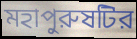
মহাপুরুষটির